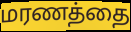
மரணத்தை